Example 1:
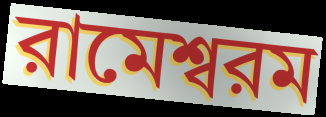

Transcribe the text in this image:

রামেশ্বরম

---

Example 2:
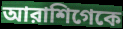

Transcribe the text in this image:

আরাশিগেকে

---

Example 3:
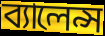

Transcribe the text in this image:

ব্যালেন্স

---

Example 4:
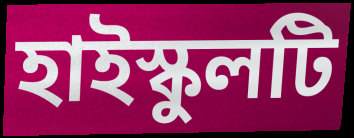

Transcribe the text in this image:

হাইস্কুলটি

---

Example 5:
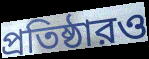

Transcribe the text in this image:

প্রতিষ্ঠারও